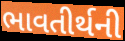
ભાવતીર્થની